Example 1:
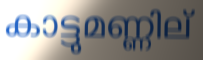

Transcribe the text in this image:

കാട്ടുമണ്ണില്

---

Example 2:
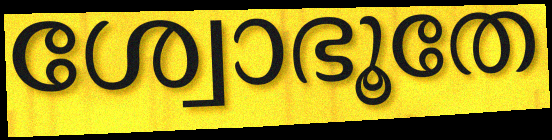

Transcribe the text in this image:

ശ്വോഭൂതേ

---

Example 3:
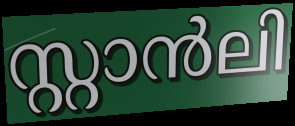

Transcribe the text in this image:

സ്റ്റാൻലി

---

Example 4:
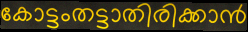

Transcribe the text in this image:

കോട്ടംതട്ടാതിരിക്കാൻ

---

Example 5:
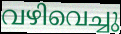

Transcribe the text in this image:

വഴിവെച്ചു